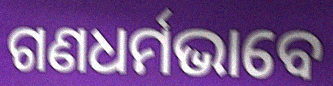
ଗଣଧର୍ମଭାବେ